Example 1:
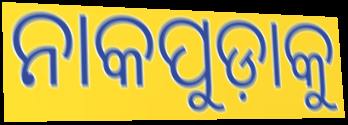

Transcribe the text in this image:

ନାକପୁଡ଼ାକୁ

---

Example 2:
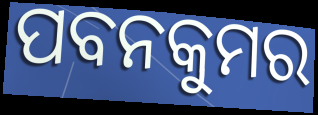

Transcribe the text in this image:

ପବନକୁମର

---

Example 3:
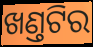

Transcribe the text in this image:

ଖଣ୍ତଟିର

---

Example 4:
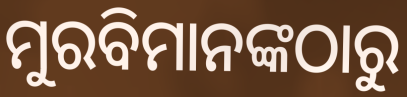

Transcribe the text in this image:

ମୁରବିମାନଙ୍କଠାରୁ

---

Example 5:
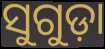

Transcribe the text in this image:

ସୁଗୁଡ଼ା